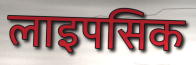
लाइपसिक